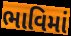
ભાવિમાં